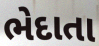
ભેદાતા